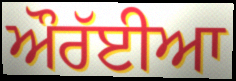
ਔਰੱਈਆ